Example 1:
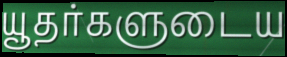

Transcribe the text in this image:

யூதர்களுடைய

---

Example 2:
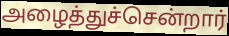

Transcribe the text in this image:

அழைத்துச்சென்றார்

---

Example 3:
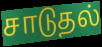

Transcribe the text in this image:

சாடுதல்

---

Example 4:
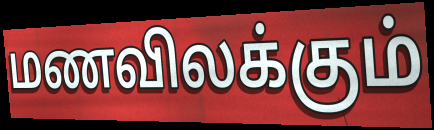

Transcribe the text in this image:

மணவிலக்கும்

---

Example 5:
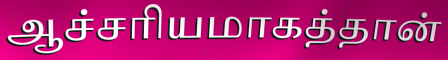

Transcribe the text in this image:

ஆச்சரியமாகத்தான்